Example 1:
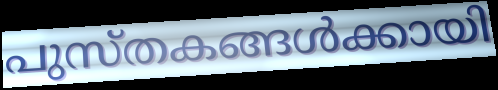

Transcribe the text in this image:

പുസ്തകങ്ങൾക്കായി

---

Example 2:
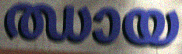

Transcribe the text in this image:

ഝായ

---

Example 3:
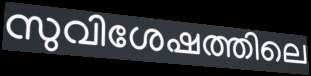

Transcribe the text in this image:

സുവിശേഷത്തിലെ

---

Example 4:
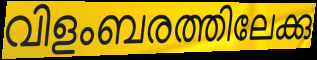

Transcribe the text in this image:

വിളംബരത്തിലേക്കു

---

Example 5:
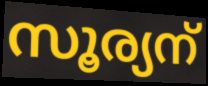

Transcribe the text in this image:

സൂര്യന്